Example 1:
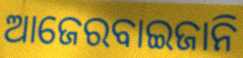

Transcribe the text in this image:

ଆଜେରବାଇଜାନି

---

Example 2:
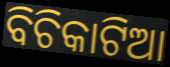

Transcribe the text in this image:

ବିଚିକାଟିଆ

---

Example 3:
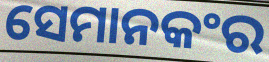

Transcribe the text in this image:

ସେମାନକଂର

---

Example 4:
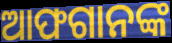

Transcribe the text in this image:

ଆଫଗାନଙ୍କ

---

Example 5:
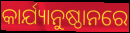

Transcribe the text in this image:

କାର୍ଯ୍ୟାନୁଷ୍ଠାନରେ